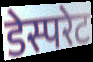
डेस्परेट